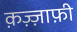
क़ज़्ज़ाफ़ी